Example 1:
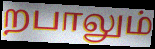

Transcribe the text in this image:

றபாலும்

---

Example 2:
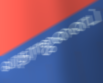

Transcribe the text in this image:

வரதராஜனைப்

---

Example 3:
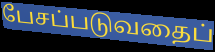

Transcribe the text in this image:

பேசப்படுவதைப்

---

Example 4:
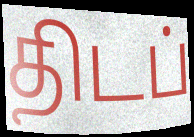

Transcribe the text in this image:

திடப்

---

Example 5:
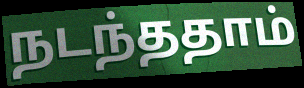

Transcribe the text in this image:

நடந்ததாம்